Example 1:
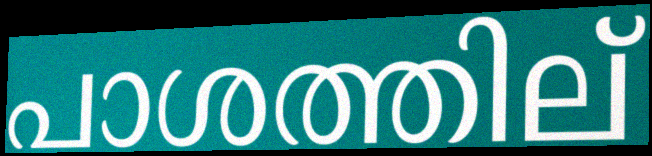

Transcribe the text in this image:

പാശത്തില്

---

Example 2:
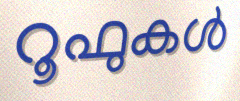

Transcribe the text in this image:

റൂഫുകൾ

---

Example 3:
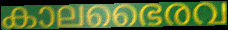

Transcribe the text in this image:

കാലഭൈരവ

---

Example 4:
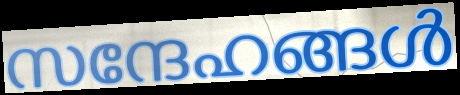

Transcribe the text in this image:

സന്ദേഹങ്ങൾ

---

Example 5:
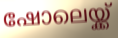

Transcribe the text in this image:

ഷോലെയ്ക്ക്